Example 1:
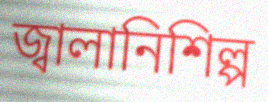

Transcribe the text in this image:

জ্বালানিশিল্প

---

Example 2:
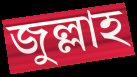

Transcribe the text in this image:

জুল্লাহ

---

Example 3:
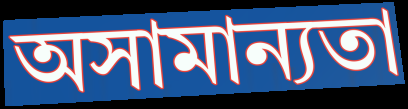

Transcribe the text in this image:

অসামান্যতা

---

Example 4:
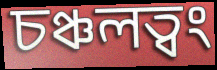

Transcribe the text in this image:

চঞ্চলত্বং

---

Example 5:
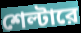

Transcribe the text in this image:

শেল্টারে